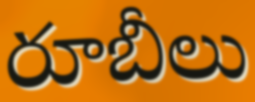
రూబీలు